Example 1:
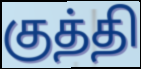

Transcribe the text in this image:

குத்தி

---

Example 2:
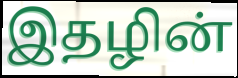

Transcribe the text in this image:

இதழின்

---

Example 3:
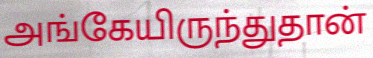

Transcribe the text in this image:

அங்கேயிருந்துதான்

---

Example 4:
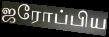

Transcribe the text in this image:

ஜரோப்பிய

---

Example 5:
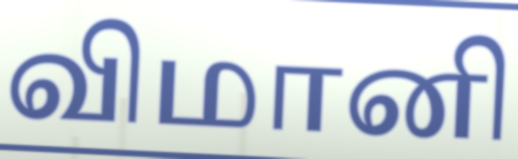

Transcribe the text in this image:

விமானி